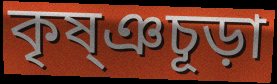
কৃষ্ঞচূড়া